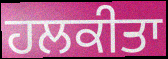
ਹਲਕੀਤਾ